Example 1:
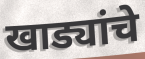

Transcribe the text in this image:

खाड्यांचे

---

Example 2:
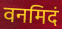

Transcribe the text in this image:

वनमिदं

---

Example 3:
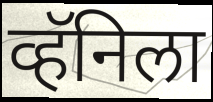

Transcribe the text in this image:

व्हॅनिला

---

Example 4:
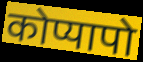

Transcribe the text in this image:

कोप्यापो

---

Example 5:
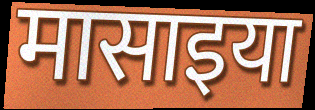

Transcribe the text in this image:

मासाइया